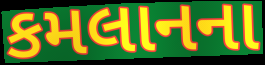
કમલાનના